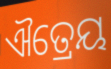
ଐତ୍ରେୟ